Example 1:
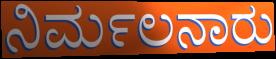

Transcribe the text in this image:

ನಿರ್ಮಲನಾರು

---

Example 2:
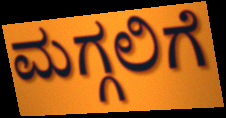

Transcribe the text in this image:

ಮಗ್ಗಲಿಗೆ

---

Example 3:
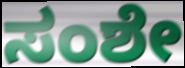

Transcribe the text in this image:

ಸಂಶೇ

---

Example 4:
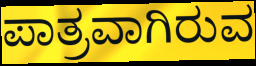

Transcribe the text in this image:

ಪಾತ್ರವಾಗಿರುವ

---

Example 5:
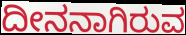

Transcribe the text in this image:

ದೀನನಾಗಿರುವ